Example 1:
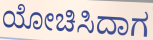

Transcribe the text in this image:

ಯೋಚಿಸಿದಾಗ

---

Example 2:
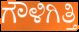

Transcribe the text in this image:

ಗೌಳಿಗಿತ್ತಿ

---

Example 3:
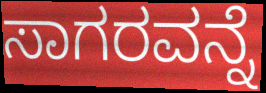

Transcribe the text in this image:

ಸಾಗರವನ್ನೆ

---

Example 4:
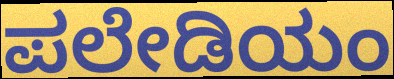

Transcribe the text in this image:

ಪಲೇಡಿಯಂ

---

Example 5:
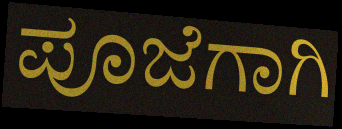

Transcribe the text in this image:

ಪೂಜೆಗಾಗಿ